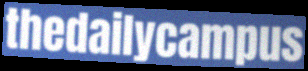
thedailycampus